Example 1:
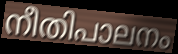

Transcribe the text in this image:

നീതിപാലനം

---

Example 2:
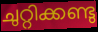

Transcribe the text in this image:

ചുറ്റിക്കണ്ടു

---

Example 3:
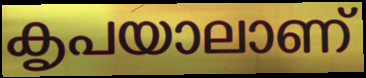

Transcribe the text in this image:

കൃപയാലാണ്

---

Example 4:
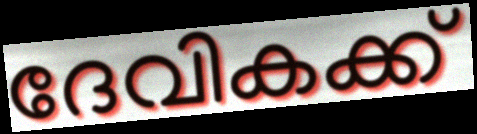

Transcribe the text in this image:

ദേവികക്ക്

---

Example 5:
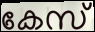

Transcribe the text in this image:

കേസ്